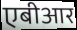
एबीआर